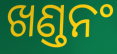
ଖଣ୍ଡନଂ